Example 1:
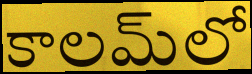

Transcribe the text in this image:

కాలమ్‍లో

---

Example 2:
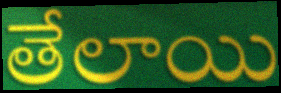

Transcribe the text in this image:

తేలాయి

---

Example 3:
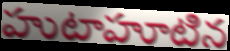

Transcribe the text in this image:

హుటాహూటిన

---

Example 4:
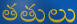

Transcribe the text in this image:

తతులు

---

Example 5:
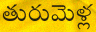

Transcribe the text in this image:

తురుమెళ్ల